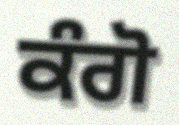
ਕੰਗੋ